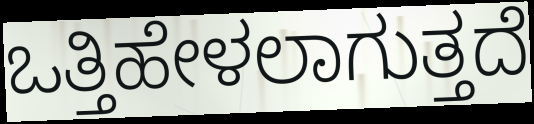
ಒತ್ತಿಹೇಳಲಾಗುತ್ತದೆ